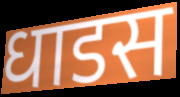
धाडस